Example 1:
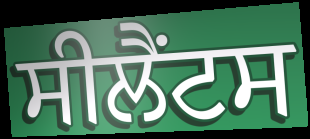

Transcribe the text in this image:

ਸੀਲੈਂਟਸ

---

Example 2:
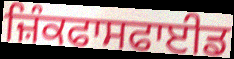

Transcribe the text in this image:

ਜ਼ਿੰਕਫਾਸਫਾਈਡ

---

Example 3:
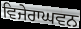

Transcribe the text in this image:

ਵਿਜੇਰਾਘਵਨ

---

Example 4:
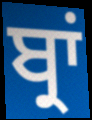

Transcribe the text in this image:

ਬ੍ਰਾਂ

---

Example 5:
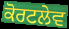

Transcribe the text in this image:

ਕੋਰਟਲੇਵ